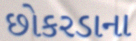
છોકરડાના